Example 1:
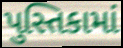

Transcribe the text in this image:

પુસ્તિકામાં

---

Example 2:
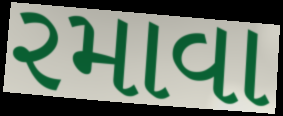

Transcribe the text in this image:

રમાવા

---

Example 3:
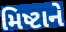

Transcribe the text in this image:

મિષ્ટાને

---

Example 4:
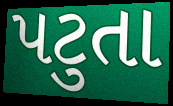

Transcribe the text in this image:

પટુતા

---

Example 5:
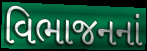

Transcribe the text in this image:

વિભાજનનાં